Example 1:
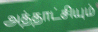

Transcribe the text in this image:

அத்தாட்சியும்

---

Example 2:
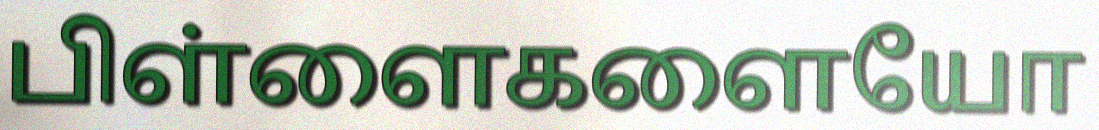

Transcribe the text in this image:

பிள்ளைகளையோ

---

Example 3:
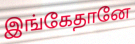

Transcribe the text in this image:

இங்கேதானே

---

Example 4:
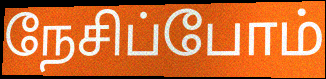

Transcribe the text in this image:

நேசிப்போம்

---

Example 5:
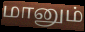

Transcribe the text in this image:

மானும்